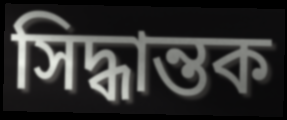
সিদ্ধান্তক